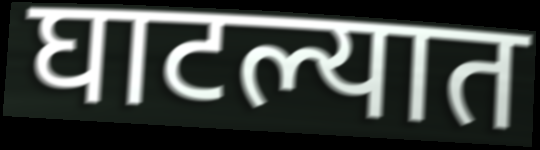
घाटल्यात